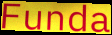
Funda